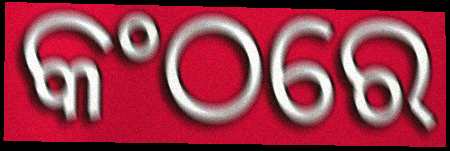
କଂଠରେ